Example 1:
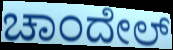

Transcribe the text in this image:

ಚಾಂದೇಲ್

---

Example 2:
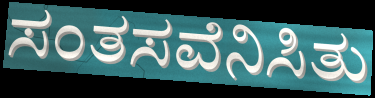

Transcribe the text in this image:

ಸಂತಸವೆನಿಸಿತು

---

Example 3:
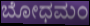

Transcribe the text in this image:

ಬೋಧಮಂ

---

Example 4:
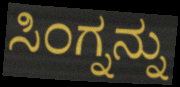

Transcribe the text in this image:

ಸಿಂಗ್ನನ್ನು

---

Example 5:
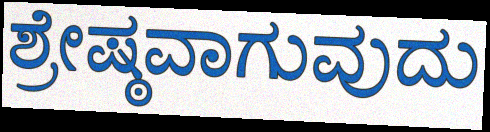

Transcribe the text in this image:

ಶ್ರೇಷ್ಠವಾಗುವುದು